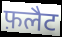
फ़लैट